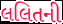
લલિતની